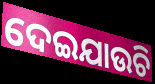
ଦେଇଯାଉଚି